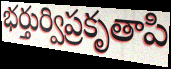
భర్తుర్విప్రకృతాపి